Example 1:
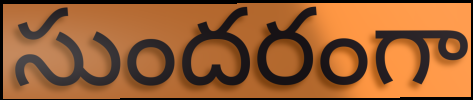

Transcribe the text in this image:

సుందరంగా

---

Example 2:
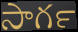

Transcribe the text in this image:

సాగర్‍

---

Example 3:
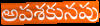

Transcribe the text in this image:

అపశకునపు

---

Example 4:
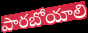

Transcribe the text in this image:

పారబోయాలి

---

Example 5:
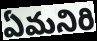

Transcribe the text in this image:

ఏమనిరి